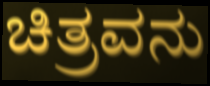
ಚಿತ್ರವನು